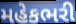
મહેકભરી